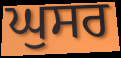
ਘੁਸਰ